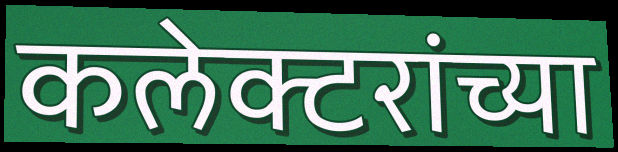
कलेक्टरांच्या